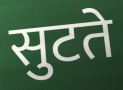
सुटते